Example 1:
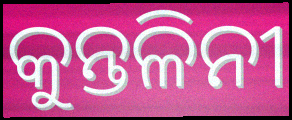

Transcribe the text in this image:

କୁନ୍ତଳିନୀ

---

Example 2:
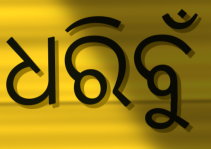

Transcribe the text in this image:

ଧରିବୁଁ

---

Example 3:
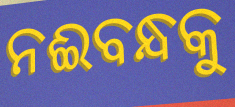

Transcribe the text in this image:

ନଈବନ୍ଧକୁ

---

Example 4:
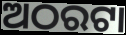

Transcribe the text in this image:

ଅଠରଟା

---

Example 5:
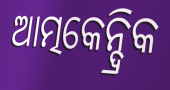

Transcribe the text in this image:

ଆତ୍ମକେନ୍ଦ୍ରିକ